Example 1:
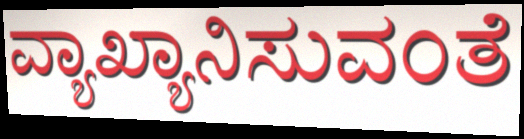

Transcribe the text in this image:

ವ್ಯಾಖ್ಯಾನಿಸುವಂತೆ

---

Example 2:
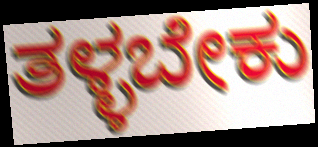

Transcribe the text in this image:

ತಳ್ಳಬೇಕು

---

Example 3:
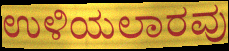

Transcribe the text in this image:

ಉಳಿಯಲಾರವು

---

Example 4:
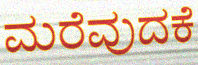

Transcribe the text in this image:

ಮರೆವುದಕೆ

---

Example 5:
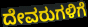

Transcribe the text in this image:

ದೇವರುಗಳಿಗೆ